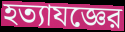
হত্যাযজ্ঞের